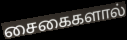
சைகைகளால்